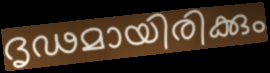
ദൃഢമായിരിക്കും